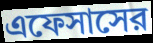
এফেসাসের